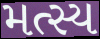
મત્સ્ય